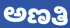
ಅಣತಿ